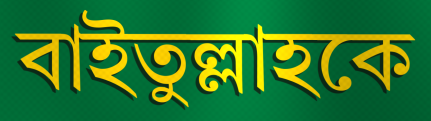
বাইতুল্লাহকে